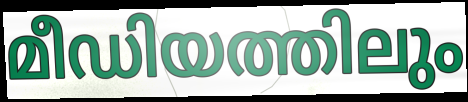
മീഡിയത്തിലും